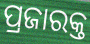
ପ୍ରଜାରକ୍ତ